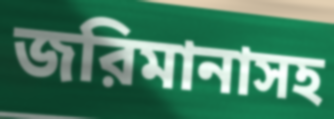
জরিমানাসহ